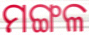
ମଙ୍ଗଳ